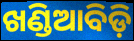
ଖଣ୍ଡିଆବିଡ଼ି